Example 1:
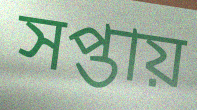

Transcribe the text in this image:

সপ্তায়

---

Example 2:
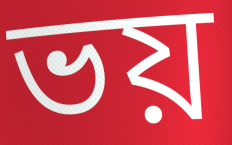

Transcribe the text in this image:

ভয়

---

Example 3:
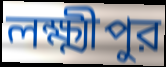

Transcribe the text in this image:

লক্ষ্মীপুর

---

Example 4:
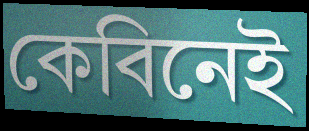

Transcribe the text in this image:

কেবিনেই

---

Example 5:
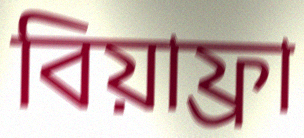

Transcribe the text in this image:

বিয়াফ্রা